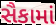
સૈકામાં